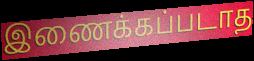
இணைக்கப்படாத